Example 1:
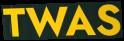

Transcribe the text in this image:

TWAS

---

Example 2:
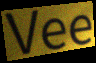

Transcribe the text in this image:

Vee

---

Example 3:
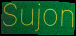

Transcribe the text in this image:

Sujon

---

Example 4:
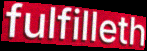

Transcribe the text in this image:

fulfilleth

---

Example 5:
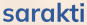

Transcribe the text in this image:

sarakti